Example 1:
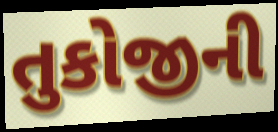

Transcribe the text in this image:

તુકોજીની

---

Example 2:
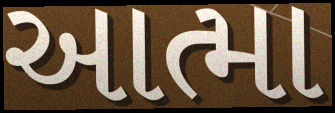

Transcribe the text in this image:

આત્મા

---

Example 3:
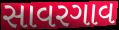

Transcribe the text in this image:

સાવરગાવ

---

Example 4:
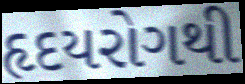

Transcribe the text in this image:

હૃદયરોગથી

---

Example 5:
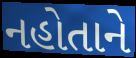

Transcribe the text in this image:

નહોતાને